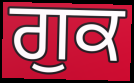
ਗੁਕ